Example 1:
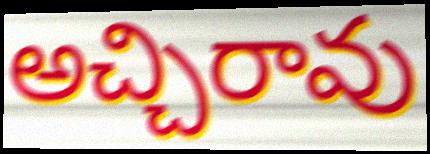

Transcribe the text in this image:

అచ్చిరావు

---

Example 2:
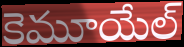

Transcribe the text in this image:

కెమూయేల్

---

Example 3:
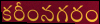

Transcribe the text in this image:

కరీంనగరం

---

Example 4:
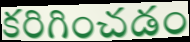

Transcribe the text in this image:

కరిగించడం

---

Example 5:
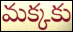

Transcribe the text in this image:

మక్కకు